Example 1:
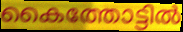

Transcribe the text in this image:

കൈത്തോട്ടിൽ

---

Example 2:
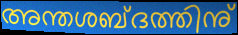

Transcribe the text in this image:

അന്തശബ്ദത്തിനു്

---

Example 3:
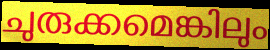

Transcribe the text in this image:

ചുരുക്കമെങ്കിലും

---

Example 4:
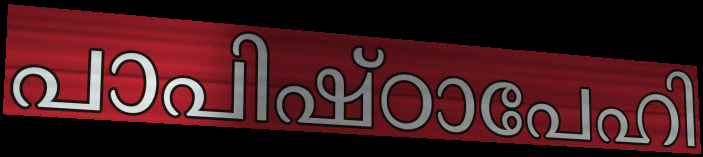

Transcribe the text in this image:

പാപിഷ്ഠാപേഹി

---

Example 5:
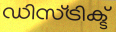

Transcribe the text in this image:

ഡിസ്ട്രിക്ട്